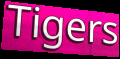
Tigers